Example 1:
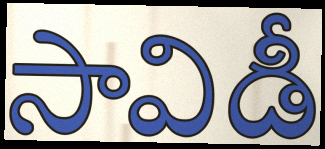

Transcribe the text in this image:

సావిడీ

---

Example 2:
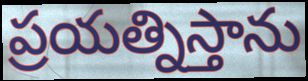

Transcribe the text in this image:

ప్రయత్నిస్తాను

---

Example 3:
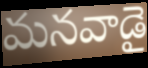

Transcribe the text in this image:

మనవాడై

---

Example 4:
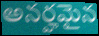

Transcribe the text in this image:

అనర్హమైన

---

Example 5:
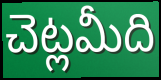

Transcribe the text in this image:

చెట్లమీది